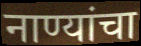
नाण्यांचा